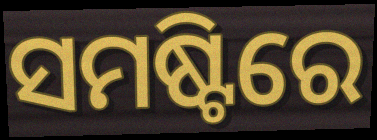
ସମଷ୍ଟିରେ